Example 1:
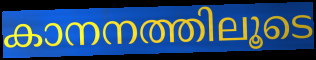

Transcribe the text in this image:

കാനനത്തിലൂടെ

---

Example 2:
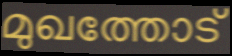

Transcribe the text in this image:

മുഖത്തോട്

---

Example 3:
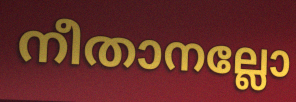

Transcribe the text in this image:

നീതാനല്ലോ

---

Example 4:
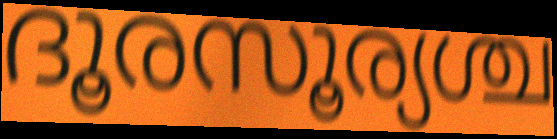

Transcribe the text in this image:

ദൂരസൂര്യശ്ച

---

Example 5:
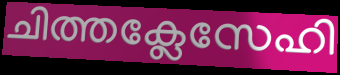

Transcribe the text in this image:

ചിത്തക്ലേസേഹി